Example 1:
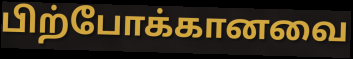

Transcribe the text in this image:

பிற்போக்கானவை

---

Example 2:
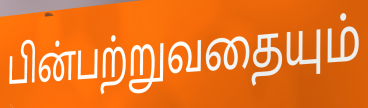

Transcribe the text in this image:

பின்பற்றுவதையும்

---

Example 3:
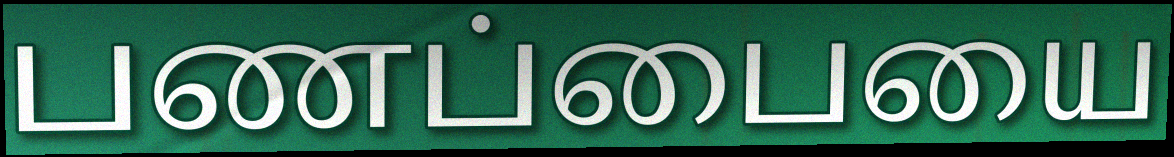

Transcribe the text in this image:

பணப்பையை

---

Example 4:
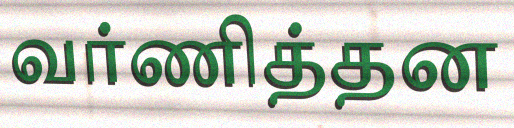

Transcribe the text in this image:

வர்ணித்தன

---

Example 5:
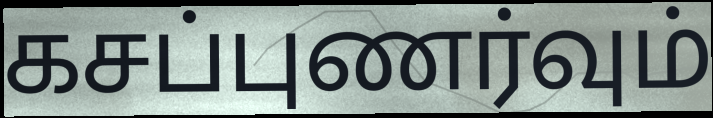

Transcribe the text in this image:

கசப்புணர்வும்